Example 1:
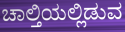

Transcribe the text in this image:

ಚಾಲ್ತಿಯಲ್ಲಿಡುವ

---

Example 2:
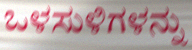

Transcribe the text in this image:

ಒಳಸುಳಿಗಳನ್ನು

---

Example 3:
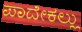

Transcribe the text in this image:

ಪಾದೇಕಲ್ಲು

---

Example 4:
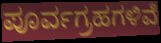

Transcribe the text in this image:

ಪೂರ್ವಗ್ರಹಗಳಿವೆ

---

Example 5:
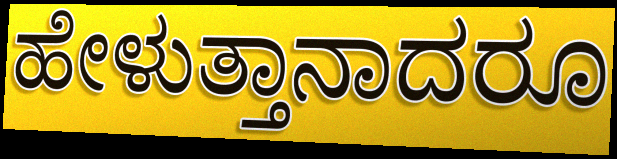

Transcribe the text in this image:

ಹೇಳುತ್ತಾನಾದರೂ